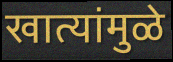
खात्यांमुळे